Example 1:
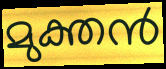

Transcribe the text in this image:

മുക്തൻ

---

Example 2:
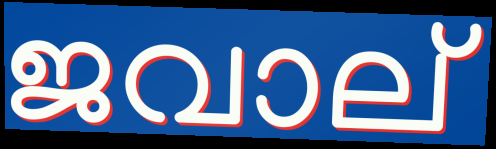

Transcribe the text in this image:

ജവാല്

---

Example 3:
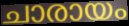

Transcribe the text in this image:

ചാരായം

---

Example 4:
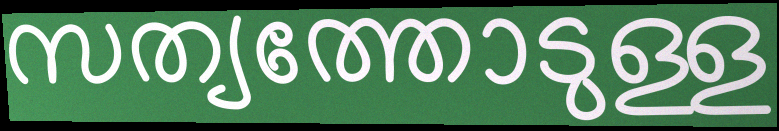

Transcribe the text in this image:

സത്യത്തോടുള്ള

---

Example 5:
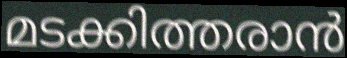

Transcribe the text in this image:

മടക്കിത്തരാൻ